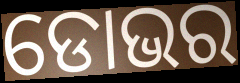
ଡୋଭର